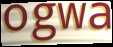
ogwa